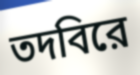
তদবিরে